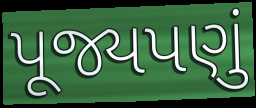
પૂજ્યપણું